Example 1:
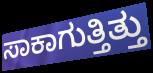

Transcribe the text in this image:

ಸಾಕಾಗುತ್ತಿತ್ತು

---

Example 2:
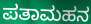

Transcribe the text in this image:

ಪತಾಮಹನ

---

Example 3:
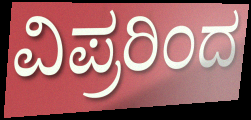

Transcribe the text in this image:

ವಿಪ್ರರಿಂದ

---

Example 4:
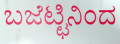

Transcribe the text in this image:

ಬಜೆಟ್ಟಿನಿಂದ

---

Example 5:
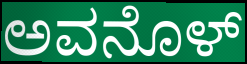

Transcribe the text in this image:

ಅವನೊಳ್